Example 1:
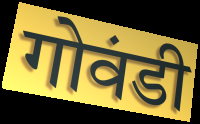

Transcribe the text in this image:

गोवंडी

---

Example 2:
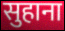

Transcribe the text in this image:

सुहाना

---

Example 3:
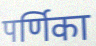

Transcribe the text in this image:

पर्णिका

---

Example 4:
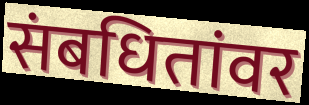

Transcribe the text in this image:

संबधितांवर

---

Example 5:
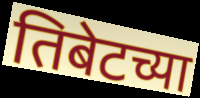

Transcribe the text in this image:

तिबेटच्या